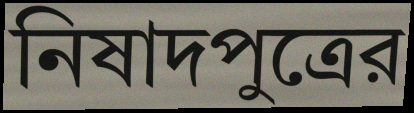
নিষাদপুত্রের